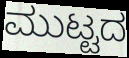
ಮುಟ್ಟದ